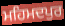
ਮਹਿਮਦਪੁਰ